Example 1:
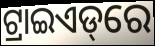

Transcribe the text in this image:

ଟ୍ରାଇଏଡ୍‌ରେ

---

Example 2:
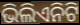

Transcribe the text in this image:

ଭିଲିଏନିଟି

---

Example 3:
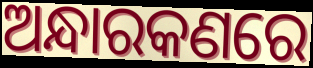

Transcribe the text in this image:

ଅନ୍ଧାରକଣରେ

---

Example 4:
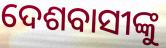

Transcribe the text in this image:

ଦେଶବାସୀଙ୍କୁ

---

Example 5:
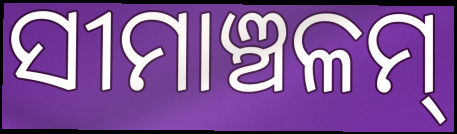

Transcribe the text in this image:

ସୀମାଞ୍ଚଳମ୍